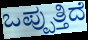
ಒಪ್ಪುತ್ತಿದೆ